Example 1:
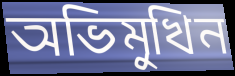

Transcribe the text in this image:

অভিমুখিন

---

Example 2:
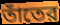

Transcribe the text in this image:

তাঁতের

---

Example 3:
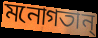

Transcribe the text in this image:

মনোগতান্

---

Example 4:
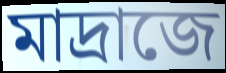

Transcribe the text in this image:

মাদ্রাজে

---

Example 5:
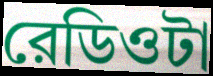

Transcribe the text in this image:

রেডিওটা